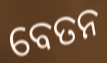
ବେତନ